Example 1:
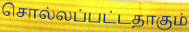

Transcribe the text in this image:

சொல்லப்பட்டதாகும்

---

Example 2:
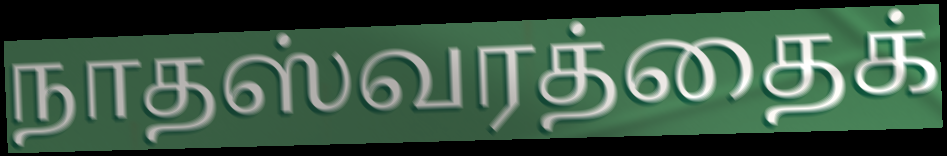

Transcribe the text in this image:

நாதஸ்வரத்தைக்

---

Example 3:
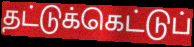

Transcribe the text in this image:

தட்டுக்கெட்டுப்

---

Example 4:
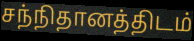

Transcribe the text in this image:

சந்நிதானத்திடம்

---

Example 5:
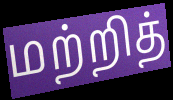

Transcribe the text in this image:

மற்றித்